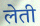
लेती